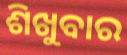
ଶିଖୁବାର